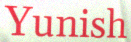
Yunish